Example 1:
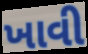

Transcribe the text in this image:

ખાવી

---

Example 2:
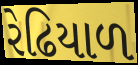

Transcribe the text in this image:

રેઢિયાળ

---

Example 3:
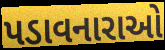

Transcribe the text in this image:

પડાવનારાઓ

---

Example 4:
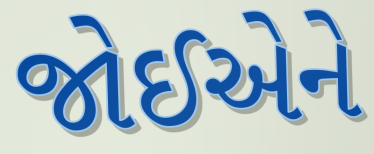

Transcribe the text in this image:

જોઈએને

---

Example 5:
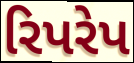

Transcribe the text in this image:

રિપરેપ